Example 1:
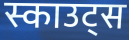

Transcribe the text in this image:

स्काउट्स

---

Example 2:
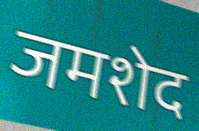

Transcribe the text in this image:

जमशेद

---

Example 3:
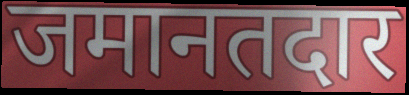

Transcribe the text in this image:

जमानतदार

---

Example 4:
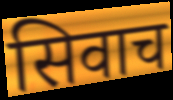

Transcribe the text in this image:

सिवाच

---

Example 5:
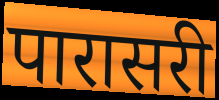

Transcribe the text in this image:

पारासरी